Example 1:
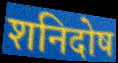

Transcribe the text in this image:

शनिदोष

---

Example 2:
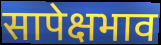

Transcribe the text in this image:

सापेक्षभाव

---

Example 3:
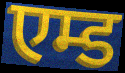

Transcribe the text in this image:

एम्ड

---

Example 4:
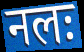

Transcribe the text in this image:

नलः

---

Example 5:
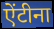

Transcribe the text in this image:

ऐंटीना